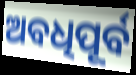
ଅବଧିପୂର୍ବ